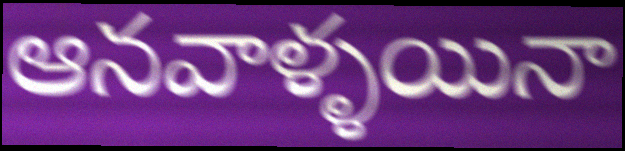
ఆనవాళ్ళయినా